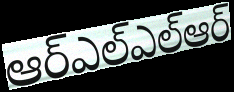
ఆర్ఎల్ఎల్ఆర్